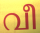
വീ